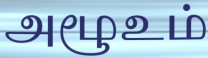
அழூஉம்